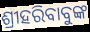
ଶ୍ରୀହରିବାବୁଙ୍କ